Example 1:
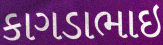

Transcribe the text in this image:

કાગડાભાઇ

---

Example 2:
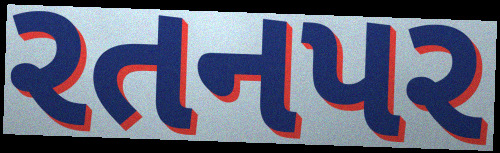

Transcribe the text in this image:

રતનપર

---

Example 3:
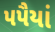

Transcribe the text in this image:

પપૈયાં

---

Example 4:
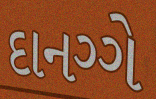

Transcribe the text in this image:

દાનગ્ગે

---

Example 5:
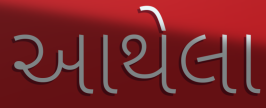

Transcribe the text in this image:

આથેલા